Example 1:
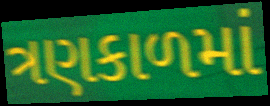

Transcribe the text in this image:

ત્રણકાળમાં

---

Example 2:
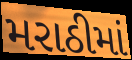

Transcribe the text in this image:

મરાઠીમાં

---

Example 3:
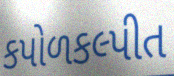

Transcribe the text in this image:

કપોળકલ્પીત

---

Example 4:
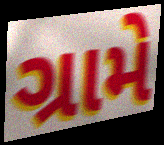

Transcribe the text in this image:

ગ્રામે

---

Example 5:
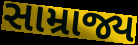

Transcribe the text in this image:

સામ્રાજ્ય